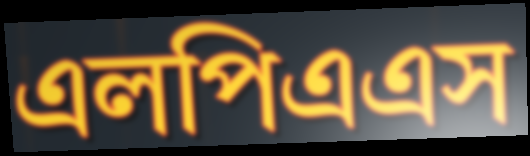
এলপিএএস